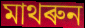
মাথৰুন